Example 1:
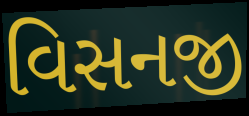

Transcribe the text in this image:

વિસનજી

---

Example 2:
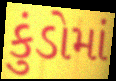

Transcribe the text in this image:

કુંડોમાં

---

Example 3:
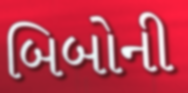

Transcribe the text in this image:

બિબોની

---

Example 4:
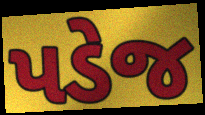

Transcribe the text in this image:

પડેજ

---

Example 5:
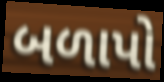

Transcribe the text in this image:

બળાપો